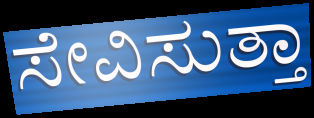
ಸೇವಿಸುತ್ತಾ